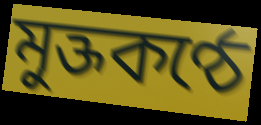
মুক্তকণ্ঠে